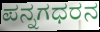
ಪನ್ನಗಧರನ